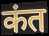
कंत